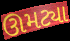
ઊમટ્યા